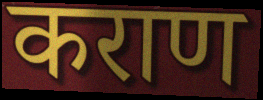
कराण